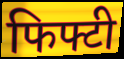
फिफ्टी